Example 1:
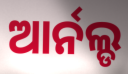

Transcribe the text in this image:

ଆର୍ନଲ୍ଡ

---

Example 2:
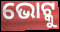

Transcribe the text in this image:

ଭୋଟ୍କୁ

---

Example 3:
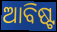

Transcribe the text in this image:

ଆବିଷ୍ଟ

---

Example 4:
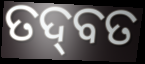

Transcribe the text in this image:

ତଦ୍‌ବତ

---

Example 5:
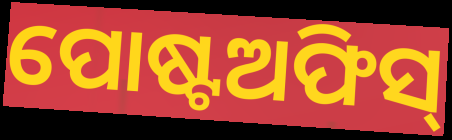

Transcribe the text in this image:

ପୋଷ୍ଟଅଫିସ୍